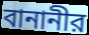
বানানীর